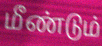
மீண்டும்